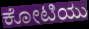
ಕೋಟಿಯು